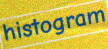
histogram